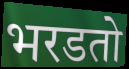
भरडतो